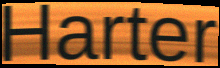
Harter